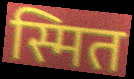
स्मित